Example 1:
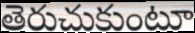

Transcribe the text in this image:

తెరుచుకుంటూ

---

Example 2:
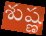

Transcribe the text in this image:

శుష్ణ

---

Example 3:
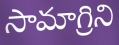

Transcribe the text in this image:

సామాగ్రిని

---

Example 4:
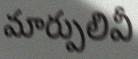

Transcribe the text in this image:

మార్పులివీ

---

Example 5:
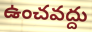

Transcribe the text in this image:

ఉంచవద్దు